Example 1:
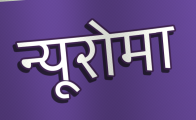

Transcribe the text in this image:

न्यूरोमा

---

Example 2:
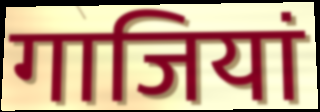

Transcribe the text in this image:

गाजियां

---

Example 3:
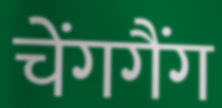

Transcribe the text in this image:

चेंगगैंग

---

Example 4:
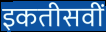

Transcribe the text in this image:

इकतीसवीं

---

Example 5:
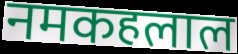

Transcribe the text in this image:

नमकहलाल